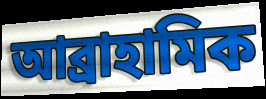
আব্ৰাহামিক